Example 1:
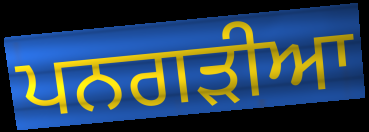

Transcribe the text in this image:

ਪਨਗੜੀਆ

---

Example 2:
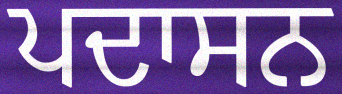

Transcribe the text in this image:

ਪਦਾਸਨ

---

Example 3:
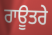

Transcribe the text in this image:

ਰਾਊਤਰੇ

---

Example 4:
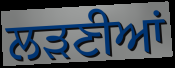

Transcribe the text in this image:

ਲੜਣੀਆਂ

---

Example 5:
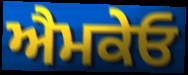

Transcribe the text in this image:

ਐਮਕੇਓ